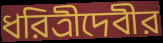
ধরিত্রীদেবীর